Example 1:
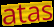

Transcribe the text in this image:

atas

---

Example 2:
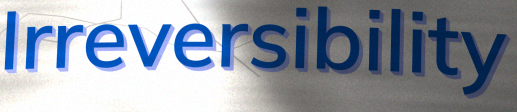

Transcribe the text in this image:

Irreversibility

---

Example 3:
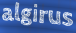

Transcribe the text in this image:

algirus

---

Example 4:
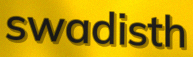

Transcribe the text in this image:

swadisth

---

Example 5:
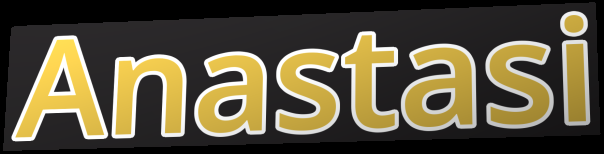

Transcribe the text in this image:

Anastasi